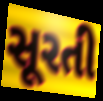
સૂરતી